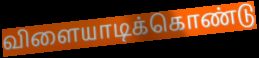
விளையாடிக்கொண்டு